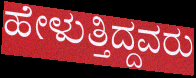
ಹೇಳುತ್ತಿದ್ದವರು